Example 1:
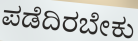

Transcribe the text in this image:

ಪಡೆದಿರಬೇಕು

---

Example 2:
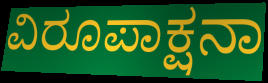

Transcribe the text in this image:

ವಿರೂಪಾಕ್ಷನಾ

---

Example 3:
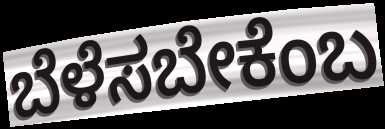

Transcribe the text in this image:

ಬೆಳೆಸಬೇಕೆಂಬ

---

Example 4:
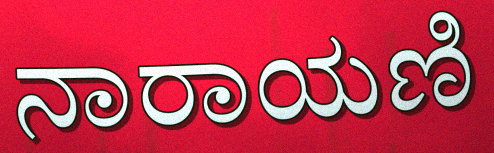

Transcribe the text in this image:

ನಾರಾಯಣಿ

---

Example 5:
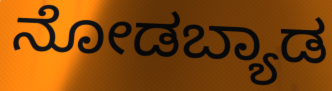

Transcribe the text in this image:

ನೋಡಬ್ಯಾಡ